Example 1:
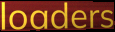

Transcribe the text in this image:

loaders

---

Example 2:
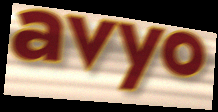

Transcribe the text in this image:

avyo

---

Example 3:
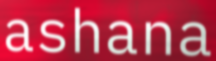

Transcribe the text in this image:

ashana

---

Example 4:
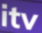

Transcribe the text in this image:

itv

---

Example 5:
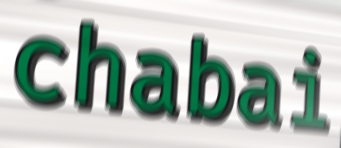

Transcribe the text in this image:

chabai